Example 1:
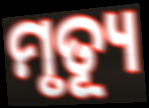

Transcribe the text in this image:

ମୃତ୍ୟୂ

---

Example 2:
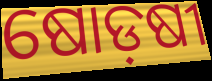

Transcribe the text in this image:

ଷୋଡ଼ଷୀ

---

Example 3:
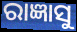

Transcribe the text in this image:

ରାଜ୍ଞାସୁ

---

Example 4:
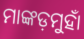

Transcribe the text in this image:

ମାଙ୍କଡ଼ମୁହାଁ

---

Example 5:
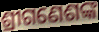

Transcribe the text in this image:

ଶ୍ରୀଗଣେଶଙ୍କ